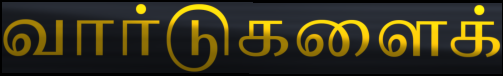
வார்டுகளைக்